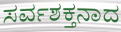
ಸರ್ವಶಕ್ತನಾದ